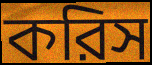
করিস